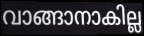
വാങ്ങാനാകില്ല